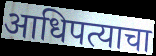
आधिपत्याचा